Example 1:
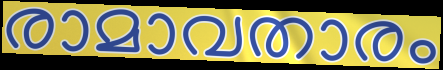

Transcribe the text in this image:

രാമാവതാരം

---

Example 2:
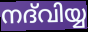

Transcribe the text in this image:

നദ്‌വിയ്യ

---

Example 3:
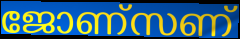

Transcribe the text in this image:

ജോണ്സണ്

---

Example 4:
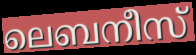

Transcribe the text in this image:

ലെബനീസ്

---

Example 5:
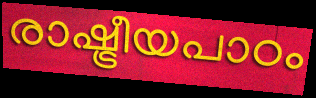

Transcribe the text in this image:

രാഷ്ട്രീയപാഠം